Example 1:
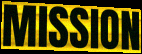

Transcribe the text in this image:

MISSION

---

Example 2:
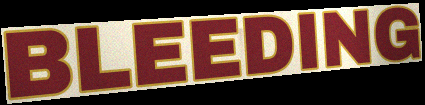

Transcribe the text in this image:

BLEEDING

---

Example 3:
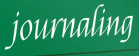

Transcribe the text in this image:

journaling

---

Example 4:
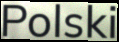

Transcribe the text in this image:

Polski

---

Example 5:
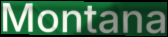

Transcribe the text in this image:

Montana